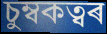
চুম্বকত্বৰ